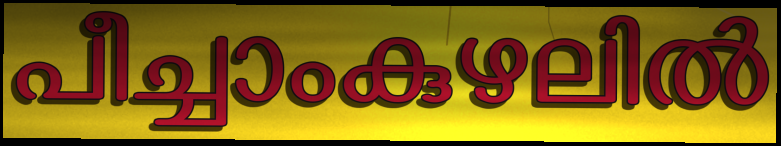
പീച്ചാംകുഴലിൽ